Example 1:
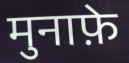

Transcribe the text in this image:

मुनाफ़े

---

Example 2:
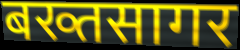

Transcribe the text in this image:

बख्तसागर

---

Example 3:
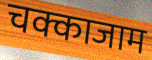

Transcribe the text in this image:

चक्काजाम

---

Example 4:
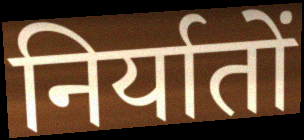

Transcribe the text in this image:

निर्यातों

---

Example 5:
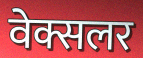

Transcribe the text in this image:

वेक्सलर